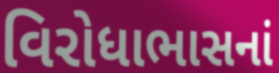
વિરોધાભાસનાં